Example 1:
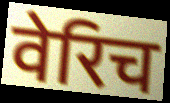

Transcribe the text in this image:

वेरिच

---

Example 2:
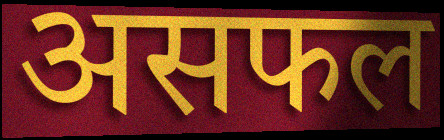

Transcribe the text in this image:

असफल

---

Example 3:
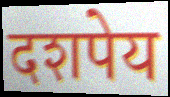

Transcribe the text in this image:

दशपेय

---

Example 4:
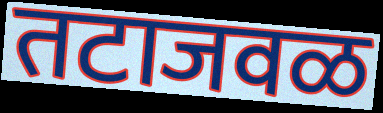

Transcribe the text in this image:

तटाजवळ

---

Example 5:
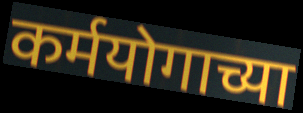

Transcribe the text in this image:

कर्मयोगाच्या